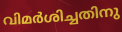
വിമർശിച്ചതിനു